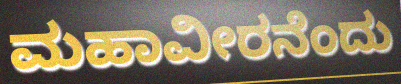
ಮಹಾವೀರನೆಂದು